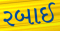
રબાઈ